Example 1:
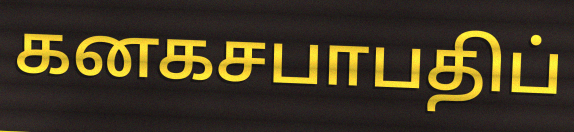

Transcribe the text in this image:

கனகசபாபதிப்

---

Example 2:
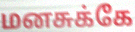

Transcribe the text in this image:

மனசுக்கே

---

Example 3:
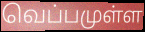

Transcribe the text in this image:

வெப்பமுள்ள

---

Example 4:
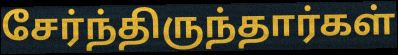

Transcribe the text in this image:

சேர்ந்திருந்தார்கள்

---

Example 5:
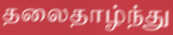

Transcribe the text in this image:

தலைதாழ்ந்து